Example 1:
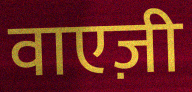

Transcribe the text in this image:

वाएज़ी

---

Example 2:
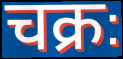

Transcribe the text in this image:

चक्रः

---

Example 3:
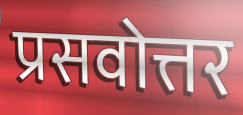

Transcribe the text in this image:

प्रसवोत्तर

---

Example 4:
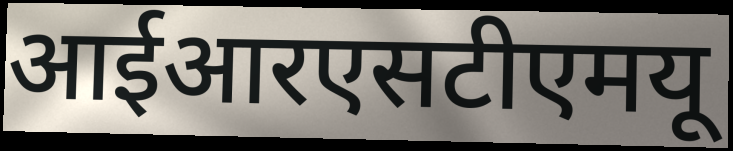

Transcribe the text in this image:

आईआरएसटीएमयू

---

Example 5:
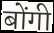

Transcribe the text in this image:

बोंगी